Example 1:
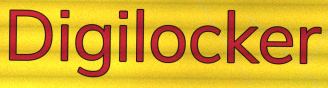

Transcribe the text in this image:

Digilocker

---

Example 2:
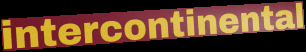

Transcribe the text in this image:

intercontinental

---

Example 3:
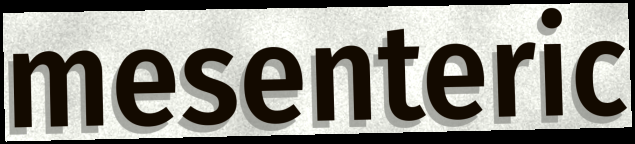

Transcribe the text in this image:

mesenteric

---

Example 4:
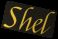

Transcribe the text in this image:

Shel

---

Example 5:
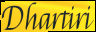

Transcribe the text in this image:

Dhartiri